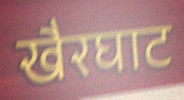
खैरघाट